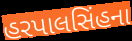
હરપાલસિંહના